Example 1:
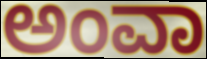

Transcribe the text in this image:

ಅಂವಾ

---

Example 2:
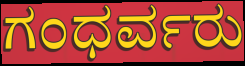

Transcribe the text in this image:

ಗಂಧರ್ವರು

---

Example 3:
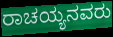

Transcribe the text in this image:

ರಾಚಯ್ಯನವರು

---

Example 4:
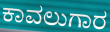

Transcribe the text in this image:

ಕಾವಲುಗಾರ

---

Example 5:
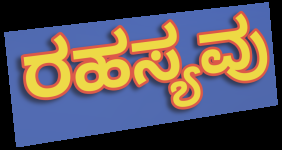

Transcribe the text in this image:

ರಹಸ್ಯವು